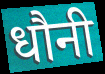
धौनी